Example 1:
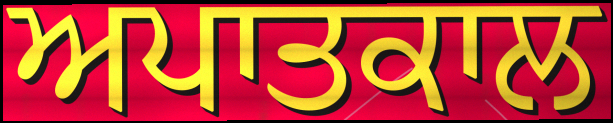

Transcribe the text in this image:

ਅਪਾਤਕਾਲ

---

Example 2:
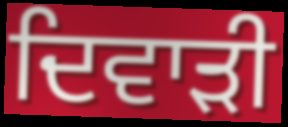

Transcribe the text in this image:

ਦਿਵਾੜੀ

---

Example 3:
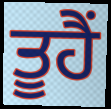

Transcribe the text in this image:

ਤੂਹੈਂ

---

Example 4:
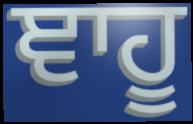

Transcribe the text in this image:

ਞਾਹੂ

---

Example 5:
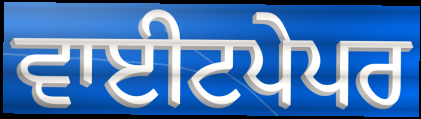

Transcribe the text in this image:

ਵਾਈਟਪੇਪਰ